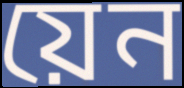
য়েন